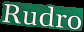
Rudro